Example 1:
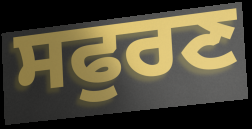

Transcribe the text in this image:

ਸਫੁਰਣ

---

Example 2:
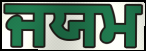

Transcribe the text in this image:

ਜਯਮ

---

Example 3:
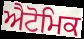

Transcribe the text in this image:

ਐਟੋਮਿਕ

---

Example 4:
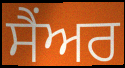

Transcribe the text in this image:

ਸੈਂਅਰ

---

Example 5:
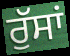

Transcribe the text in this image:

ਰੁੱਸਾਂ